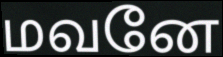
மவனே